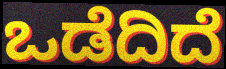
ಒಡೆದಿದೆ